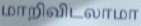
மாறிவிடலாமா